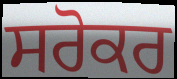
ਸਰੋਕਰ